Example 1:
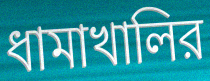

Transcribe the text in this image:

ধামাখালির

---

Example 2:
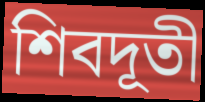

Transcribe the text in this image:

শিবদূতী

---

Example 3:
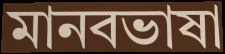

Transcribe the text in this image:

মানবভাষা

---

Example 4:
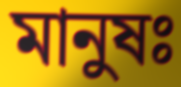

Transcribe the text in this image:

মানুষঃ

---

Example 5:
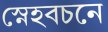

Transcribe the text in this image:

স্নেহবচনে